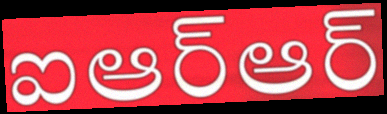
ఐఆర్ఆర్